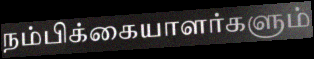
நம்பிக்கையாளர்களும்